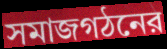
সমাজগঠনের